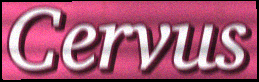
Cervus